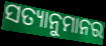
ସତ୍ୟାନୁମାନର